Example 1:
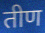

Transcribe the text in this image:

तीण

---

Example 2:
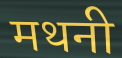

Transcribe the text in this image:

मथनी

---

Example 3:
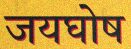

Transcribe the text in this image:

जयघोष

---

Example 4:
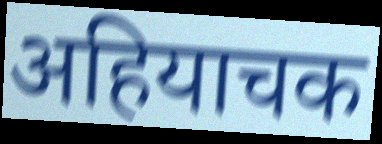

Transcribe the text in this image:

अहियाचक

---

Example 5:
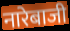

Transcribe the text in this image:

नारेबाजी